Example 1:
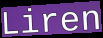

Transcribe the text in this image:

Liren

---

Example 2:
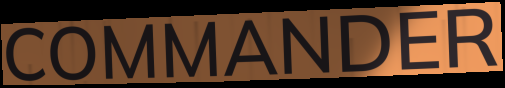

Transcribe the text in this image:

COMMANDER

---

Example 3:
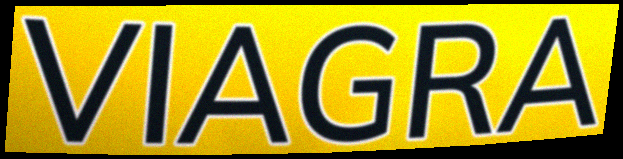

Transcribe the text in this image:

VIAGRA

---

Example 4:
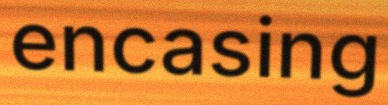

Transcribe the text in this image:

encasing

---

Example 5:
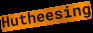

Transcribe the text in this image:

Hutheesing